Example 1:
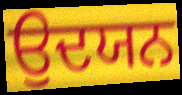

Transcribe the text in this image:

ਉਦਯਨ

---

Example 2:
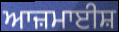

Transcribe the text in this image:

ਆਜ਼ਮਾਈਸ਼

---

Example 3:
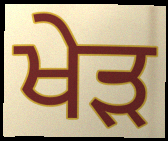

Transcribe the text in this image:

ਖੇੜ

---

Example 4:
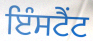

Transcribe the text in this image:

ਇੰਸਟੈਂਟ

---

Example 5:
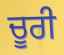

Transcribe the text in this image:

ਚੂਰੀ